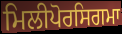
ਮਿਲੀਪੋਰਸਿਗਮਾ